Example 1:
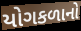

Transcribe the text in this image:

યોગકળાનો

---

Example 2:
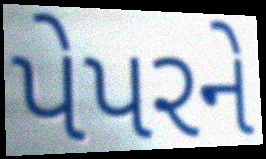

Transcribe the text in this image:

પેપરને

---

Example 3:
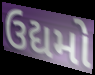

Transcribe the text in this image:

ઉદ્યમો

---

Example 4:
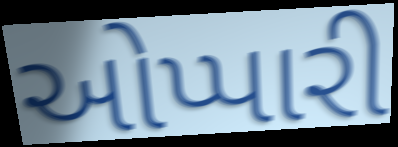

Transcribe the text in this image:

ઓપ્પારી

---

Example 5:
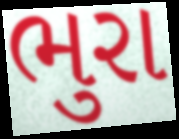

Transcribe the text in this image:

ભુરા